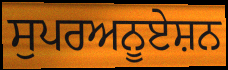
ਸੁਪਰਅਨੂਏਸ਼ਨ